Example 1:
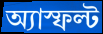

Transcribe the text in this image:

অ্যাস্ফল্ট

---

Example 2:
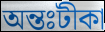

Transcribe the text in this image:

অন্তঃটীকা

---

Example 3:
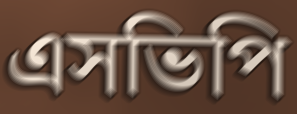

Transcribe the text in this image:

এসভিপি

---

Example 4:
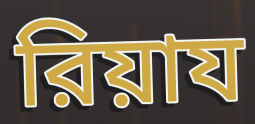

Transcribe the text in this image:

রিয়ায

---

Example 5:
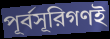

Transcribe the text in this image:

পূর্বসূরিগণই